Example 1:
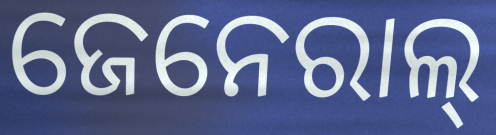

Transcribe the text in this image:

ଜେନେରାଲ୍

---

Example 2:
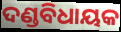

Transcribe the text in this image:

ଦଣ୍ଡବିଧାୟକ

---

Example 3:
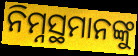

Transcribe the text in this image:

ନିମ୍ନସ୍ଥମାନଙ୍କୁ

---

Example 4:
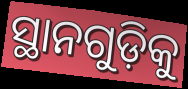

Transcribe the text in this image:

ସ୍ଥାନଗୁଡ଼ିକୁ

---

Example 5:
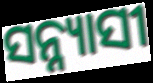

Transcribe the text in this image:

ସନ୍ନ୍ୟାସୀ